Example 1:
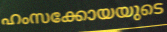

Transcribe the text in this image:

ഹംസക്കോയയുടെ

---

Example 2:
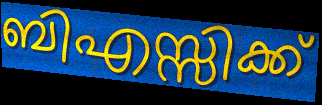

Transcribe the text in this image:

ബിഎസ്സിക്ക്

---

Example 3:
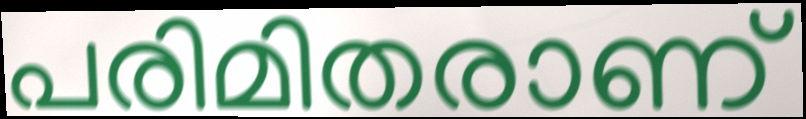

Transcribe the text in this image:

പരിമിതരാണ്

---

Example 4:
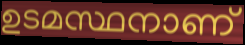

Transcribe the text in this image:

ഉടമസ്ഥനാണ്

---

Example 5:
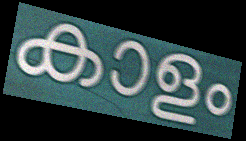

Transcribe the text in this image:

കാളം